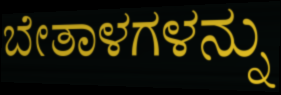
ಬೇತಾಳಗಳನ್ನು